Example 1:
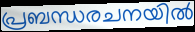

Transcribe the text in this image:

പ്രബന്ധരചനയിൽ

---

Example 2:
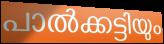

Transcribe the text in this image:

പാൽക്കട്ടിയും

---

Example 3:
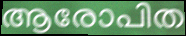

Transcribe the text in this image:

ആരോപിത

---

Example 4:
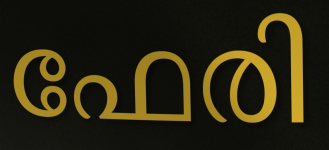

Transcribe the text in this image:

ഫേരി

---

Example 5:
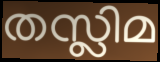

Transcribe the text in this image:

തസ്ലിമ